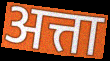
अत्ता